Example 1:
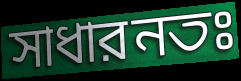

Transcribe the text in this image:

সাধারনতঃ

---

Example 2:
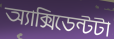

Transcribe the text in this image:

অ্যাক্সিডেন্টটা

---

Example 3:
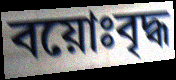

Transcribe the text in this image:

বয়োঃবৃদ্ধ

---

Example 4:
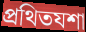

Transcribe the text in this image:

প্রথিতযশা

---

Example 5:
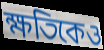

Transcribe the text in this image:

ক্ষতিকেও